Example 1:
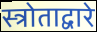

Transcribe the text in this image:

स्त्रोताद्वारे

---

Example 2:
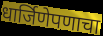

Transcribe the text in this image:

धार्जिणेपणाचा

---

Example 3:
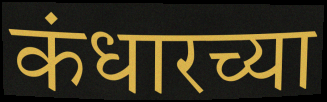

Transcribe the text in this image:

कंधारच्या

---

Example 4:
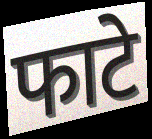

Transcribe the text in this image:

फाटे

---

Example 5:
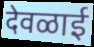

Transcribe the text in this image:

देवळाई